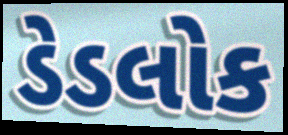
ડેડલોક